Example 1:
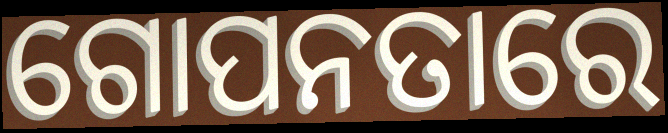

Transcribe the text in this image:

ଗୋପନତାରେ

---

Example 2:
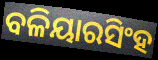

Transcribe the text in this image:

ବଳିୟାରସିଂହ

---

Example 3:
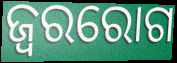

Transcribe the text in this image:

ଜ୍ୱରରୋଗ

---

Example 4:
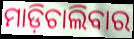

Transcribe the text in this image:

ମାଡ଼ିଚାଲିବାର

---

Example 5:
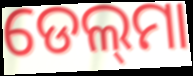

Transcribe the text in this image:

ଡେଲ୍‍ମା